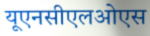
यूएनसीएलओएस